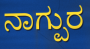
ನಾಗ್ಪುರ